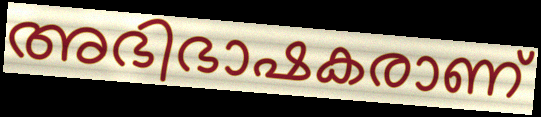
അഭിഭാഷകരാണ്